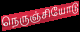
நெருஞ்சியோடு